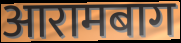
आरामबाग